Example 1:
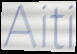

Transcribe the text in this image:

Aiti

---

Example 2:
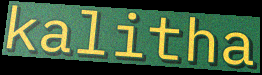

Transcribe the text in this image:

kalitha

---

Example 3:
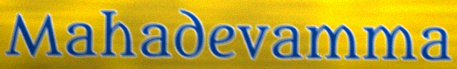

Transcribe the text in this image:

Mahadevamma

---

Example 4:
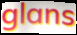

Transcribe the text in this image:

glans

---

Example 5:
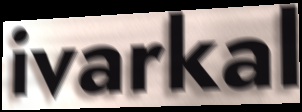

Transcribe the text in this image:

ivarkal